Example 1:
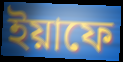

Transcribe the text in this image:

ইয়াফে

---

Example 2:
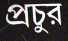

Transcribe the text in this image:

প্রচুর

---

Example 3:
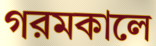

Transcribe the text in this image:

গরমকালে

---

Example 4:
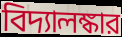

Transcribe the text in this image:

বিদ্যালঙ্কার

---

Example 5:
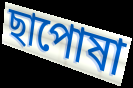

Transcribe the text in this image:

ছাপোষা